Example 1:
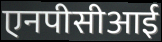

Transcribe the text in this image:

एनपीसीआई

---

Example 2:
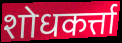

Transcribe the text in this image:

शोधकर्त्ता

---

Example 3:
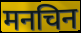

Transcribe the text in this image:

मनचिन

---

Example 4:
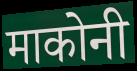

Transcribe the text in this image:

माकोनी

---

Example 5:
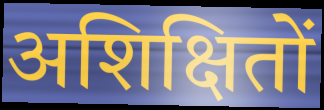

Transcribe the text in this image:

अशिक्षितों